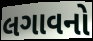
લગાવનો